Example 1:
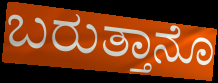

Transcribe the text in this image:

ಬರುತ್ತಾನೊ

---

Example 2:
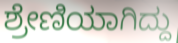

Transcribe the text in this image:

ಶ್ರೇಣಿಯಾಗಿದ್ದು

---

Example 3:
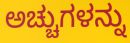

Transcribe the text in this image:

ಅಚ್ಚುಗಳನ್ನು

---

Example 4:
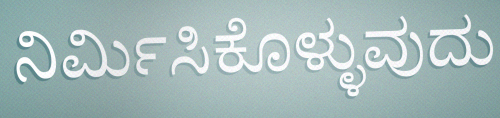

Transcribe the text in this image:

ನಿರ್ಮಿಸಿಕೊಳ್ಳುವುದು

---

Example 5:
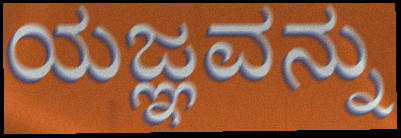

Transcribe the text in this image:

ಯಜ್ಞವನ್ನು